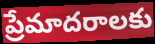
ప్రేమాదరాలకు